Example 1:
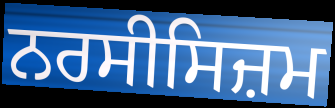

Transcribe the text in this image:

ਨਰਸੀਸਿਜ਼ਮ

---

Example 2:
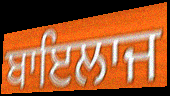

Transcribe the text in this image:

ਬਾਇਲਾਜ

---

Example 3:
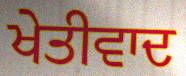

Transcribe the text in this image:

ਖੇਤੀਵਾਦ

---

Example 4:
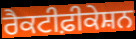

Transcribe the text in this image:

ਰੈਕਟੀਫ਼ੀਕੇਸ਼ਨ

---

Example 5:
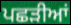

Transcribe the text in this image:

ਪਛੜੀਆਂ